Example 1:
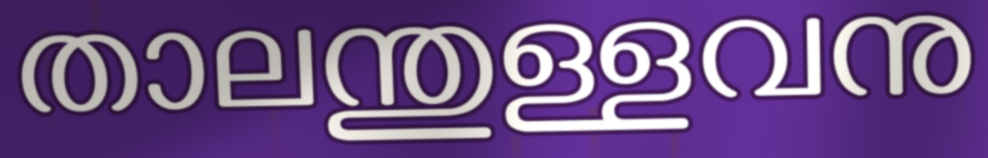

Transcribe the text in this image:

താലന്തുള്ളവനു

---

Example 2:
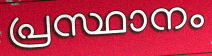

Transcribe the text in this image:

പ്രസ്ഥാനം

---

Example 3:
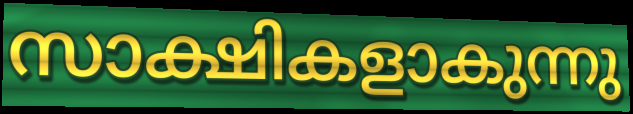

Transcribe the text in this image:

സാക്ഷികളാകുന്നു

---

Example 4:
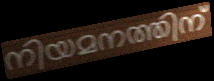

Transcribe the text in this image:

നിയമനത്തിന്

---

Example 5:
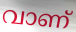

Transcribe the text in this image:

വാണ്